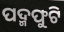
ପଦ୍ମଫୁଟି